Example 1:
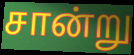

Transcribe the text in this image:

சான்று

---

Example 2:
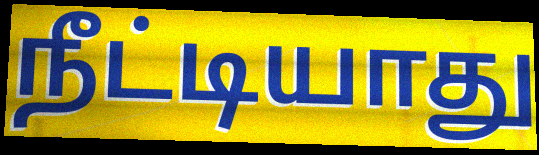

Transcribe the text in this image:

நீட்டியாது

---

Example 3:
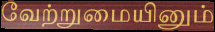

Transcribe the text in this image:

வேற்றுமையினும்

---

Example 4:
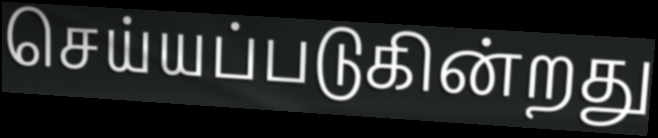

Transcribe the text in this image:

செய்யப்படுகின்றது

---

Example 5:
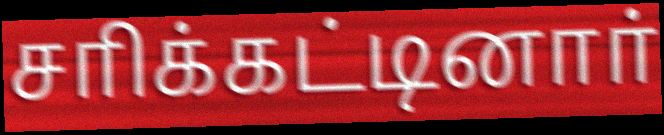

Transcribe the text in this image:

சரிக்கட்டினார்